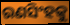
ରଣସିଂହକୁ